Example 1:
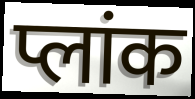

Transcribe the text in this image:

प्लांक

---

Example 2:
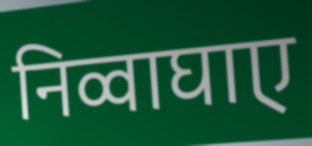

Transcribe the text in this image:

निव्वाघाए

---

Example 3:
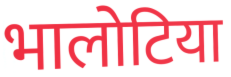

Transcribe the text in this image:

भालोटिया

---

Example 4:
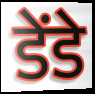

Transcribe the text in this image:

डेंडे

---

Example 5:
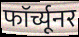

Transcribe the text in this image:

फॉर्च्यूनर